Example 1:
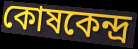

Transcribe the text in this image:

কোষকেন্দ্ৰ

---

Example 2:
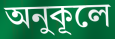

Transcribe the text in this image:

অনুকূলে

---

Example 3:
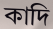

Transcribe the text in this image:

কাদি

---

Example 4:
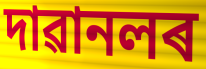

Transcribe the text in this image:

দাৱানলৰ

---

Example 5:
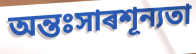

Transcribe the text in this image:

অন্তঃসাৰশূন্যতা